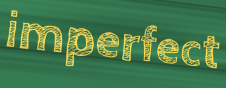
imperfect